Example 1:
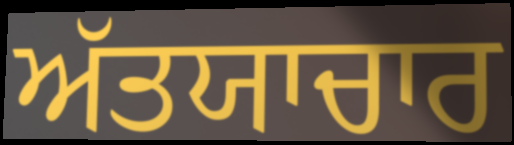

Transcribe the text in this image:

ਅੱਤਯਾਚਾਰ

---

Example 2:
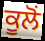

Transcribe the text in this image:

ਕੂਲੋਂ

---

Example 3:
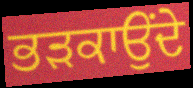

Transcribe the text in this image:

ਭੜਕਾਉਂਦੇ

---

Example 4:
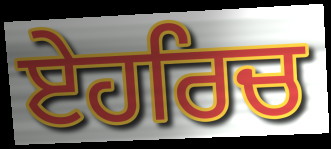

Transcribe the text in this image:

ਏਹਰਿਚ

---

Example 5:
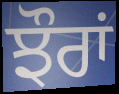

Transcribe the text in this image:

ਝੌਰਾਂ